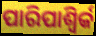
ପାରିପାଶ୍ୱିର୍କ